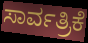
ಸಾರ್ವತ್ರಿಕೆ